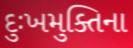
દુઃખમુક્તિના